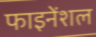
फाइनेंशल